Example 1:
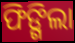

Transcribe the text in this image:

ଫିଙ୍ଗିଲା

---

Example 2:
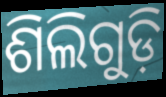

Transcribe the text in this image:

ଶିଲିଗୁଡ଼ି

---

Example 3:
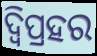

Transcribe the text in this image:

ଦ୍ବିପ୍ରହର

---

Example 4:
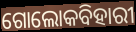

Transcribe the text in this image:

ଗୋଲୋକବିହାରୀ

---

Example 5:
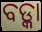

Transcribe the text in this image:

ବଡ୍କା